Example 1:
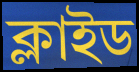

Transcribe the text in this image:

ক্লাইড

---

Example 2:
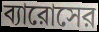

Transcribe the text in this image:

ব্যারোসের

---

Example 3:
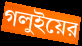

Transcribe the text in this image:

গলুইয়ের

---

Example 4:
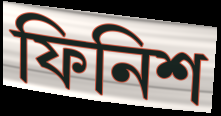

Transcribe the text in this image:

ফিনিশ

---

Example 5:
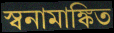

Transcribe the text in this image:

স্বনামাঙ্কিত